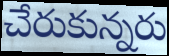
చేరుకున్నరు